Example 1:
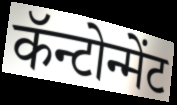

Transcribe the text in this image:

कॅन्टोन्मेंट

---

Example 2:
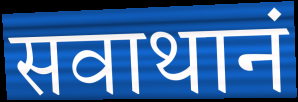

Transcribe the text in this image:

सवाथानं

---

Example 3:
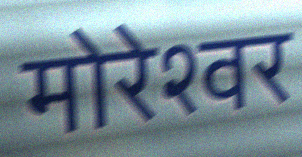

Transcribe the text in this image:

मोरेश्वर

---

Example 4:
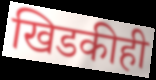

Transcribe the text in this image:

खिडकीही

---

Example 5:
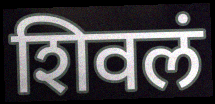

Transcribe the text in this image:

शिवलं